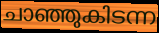
ചാഞ്ഞുകിടന്ന